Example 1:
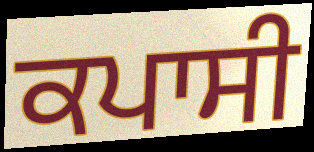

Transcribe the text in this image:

ਕਪਾਸੀ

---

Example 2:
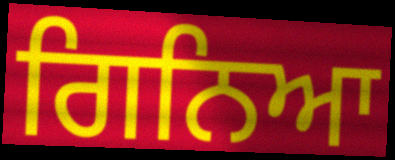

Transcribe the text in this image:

ਗਿਨਿਆ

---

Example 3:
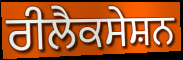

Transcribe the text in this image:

ਰੀਲੈਕਸੇਸ਼ਨ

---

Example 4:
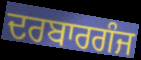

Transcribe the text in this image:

ਦਰਬਾਰਗੰਜ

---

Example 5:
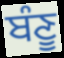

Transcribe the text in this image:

ਬੰਣੂ